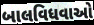
બાલવિધવાઓ